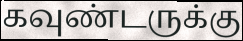
கவுண்டருக்கு